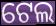
ଟେଲ